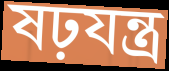
ষঢ়যন্ত্র